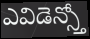
ఎవిడెన్స్తో